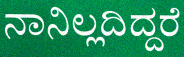
ನಾನಿಲ್ಲದಿದ್ದರೆ